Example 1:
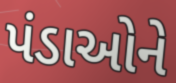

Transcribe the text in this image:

પંડાઓને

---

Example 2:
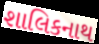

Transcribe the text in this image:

શાલિકનાથ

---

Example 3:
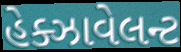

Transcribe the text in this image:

હેક્ઝાવેલન્ટ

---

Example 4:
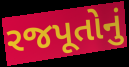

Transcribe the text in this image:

રજપૂતોનું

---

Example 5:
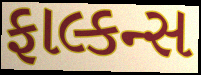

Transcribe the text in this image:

ફાલ્કન્સ